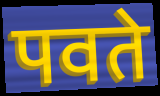
पवते